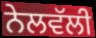
ਨੇਲਵੱਲੀ